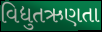
વિદ્યુતઋણતા